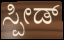
ಸ್ಪೀಡ್